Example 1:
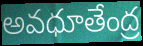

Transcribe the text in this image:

అవధూతేంద్ర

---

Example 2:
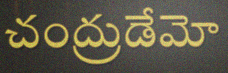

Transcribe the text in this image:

చంద్రుడేమో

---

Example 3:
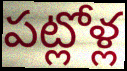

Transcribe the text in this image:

పట్లోళ్ల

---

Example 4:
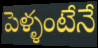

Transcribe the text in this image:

పెళ్ళంటేనే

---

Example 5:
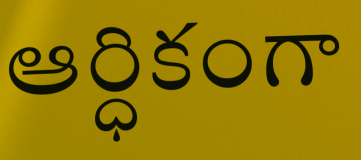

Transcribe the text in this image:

ఆర్ధికంగా